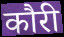
कौरी